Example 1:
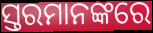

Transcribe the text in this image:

ସ୍ତରମାନଙ୍କରେ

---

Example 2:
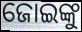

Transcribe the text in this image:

ଜୋଇଙ୍କୁ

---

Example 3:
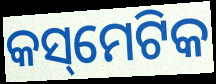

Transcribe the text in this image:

କସ୍‌ମେଟିକ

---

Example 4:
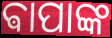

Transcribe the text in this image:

ଵାପାଙ୍କ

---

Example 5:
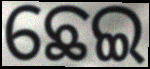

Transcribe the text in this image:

ଛେଇ